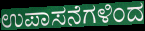
ಉಪಾಸನೆಗಳಿಂದ